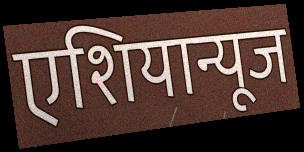
एशियान्यूज